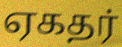
ஏகதர்